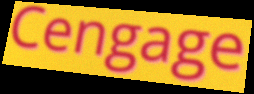
Cengage